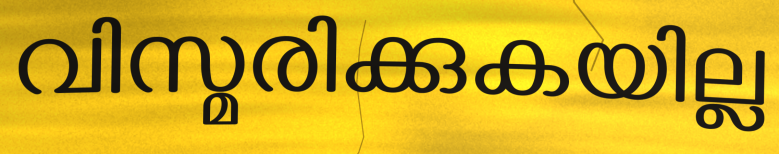
വിസ്മരിക്കുകയില്ല